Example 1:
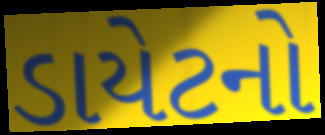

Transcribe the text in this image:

ડાયેટનો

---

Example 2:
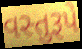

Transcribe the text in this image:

વસ્તુરૂપે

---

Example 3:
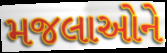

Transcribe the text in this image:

મજલાઓને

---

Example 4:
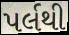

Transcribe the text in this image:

પર્લથી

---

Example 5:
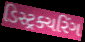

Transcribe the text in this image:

ડિસ્ટ્રક્ચરિંગ